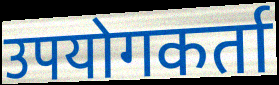
उपयोगकर्ता